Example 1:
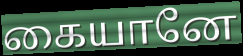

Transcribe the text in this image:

கையானே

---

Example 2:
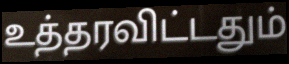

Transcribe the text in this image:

உத்தரவிட்டதும்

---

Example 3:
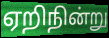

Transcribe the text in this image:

ஏறிநின்று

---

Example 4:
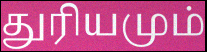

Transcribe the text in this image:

துரியமும்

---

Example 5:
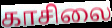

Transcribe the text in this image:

காசிலை